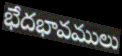
భేదభావములు